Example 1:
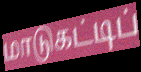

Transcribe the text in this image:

மாடுகட்டிப்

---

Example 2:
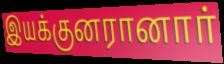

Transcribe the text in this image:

இயக்குனரானார்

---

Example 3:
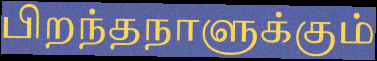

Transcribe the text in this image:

பிறந்தநாளுக்கும்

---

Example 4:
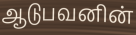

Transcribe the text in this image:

ஆடுபவனின்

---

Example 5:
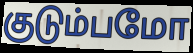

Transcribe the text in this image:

குடும்பமோ